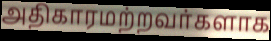
அதிகாரமற்றவர்களாக